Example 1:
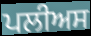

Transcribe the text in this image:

ਪਲੀਅਸ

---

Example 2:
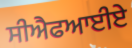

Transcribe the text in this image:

ਸੀਐਫਆਈਏ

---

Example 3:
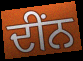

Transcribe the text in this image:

ਦੀਂਨ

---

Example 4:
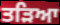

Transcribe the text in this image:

ਤੜਿਆ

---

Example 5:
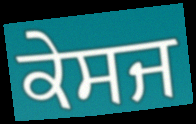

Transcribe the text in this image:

ਕੇਸਜ